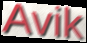
Avik